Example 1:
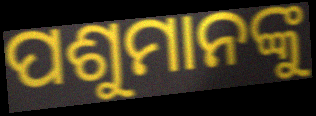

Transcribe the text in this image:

ପଶୁମାନଙ୍କୁ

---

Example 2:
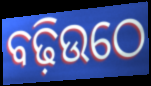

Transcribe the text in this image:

ବଢ଼ିଉଠେ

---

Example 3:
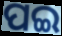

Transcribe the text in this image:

ପଇ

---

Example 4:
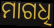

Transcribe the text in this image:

ମାଗଧି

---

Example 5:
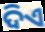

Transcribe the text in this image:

ଦିଏ